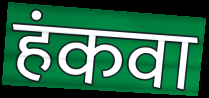
हंकवा